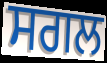
ਸਗਲ